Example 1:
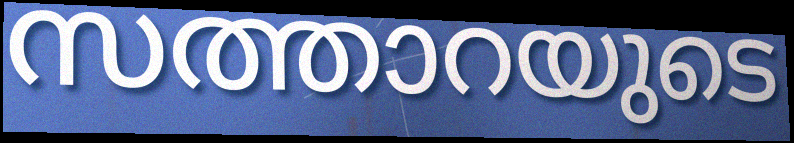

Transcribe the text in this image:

സത്താറയുടെ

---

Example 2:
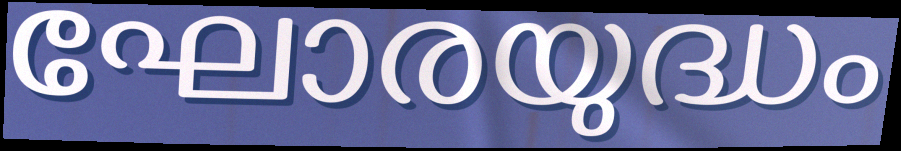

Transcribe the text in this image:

ഘോരയുദ്ധം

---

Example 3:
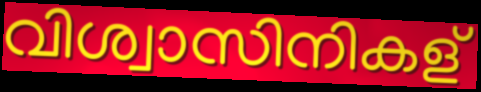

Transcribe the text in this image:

വിശ്വാസിനികള്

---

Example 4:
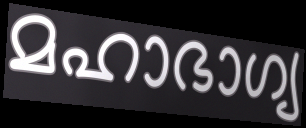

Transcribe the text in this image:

മഹാഭാഗ്യ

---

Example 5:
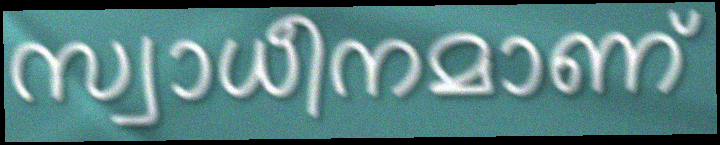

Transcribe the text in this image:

സ്വാധീനമാണ്